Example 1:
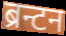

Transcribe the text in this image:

ब्रन्टन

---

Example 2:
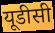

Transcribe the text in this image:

यूडीसी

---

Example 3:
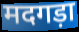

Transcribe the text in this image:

मदगड़ा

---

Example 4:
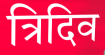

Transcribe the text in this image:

त्रिदिव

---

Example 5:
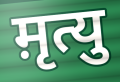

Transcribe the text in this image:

म़ृत्यु